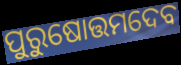
ପୁରୁଷୋତ୍ତମଦେବ